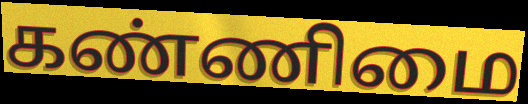
கண்ணிமை